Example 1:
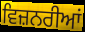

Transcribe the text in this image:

ਵਿਜ਼ਨਰੀਆਂ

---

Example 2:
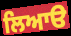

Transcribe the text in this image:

ਲਿਆੳ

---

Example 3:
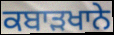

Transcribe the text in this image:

ਕਬਾੜਖਾਨੇ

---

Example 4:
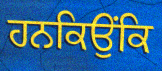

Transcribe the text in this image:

ਹਨਕਿਉਂਕਿ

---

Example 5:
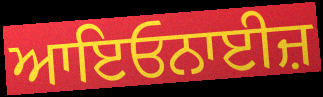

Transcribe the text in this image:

ਆਇਓਨਾਈਜ਼